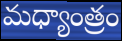
మధ్యాంత్రం